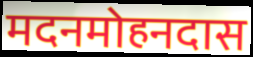
मदनमोहनदास